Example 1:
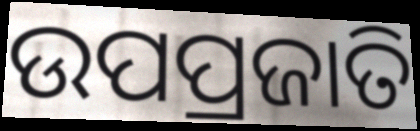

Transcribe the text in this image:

ଉପପ୍ରଜାତି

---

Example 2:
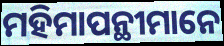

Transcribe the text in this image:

ମହିମାପନ୍ଥୀମାନେ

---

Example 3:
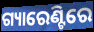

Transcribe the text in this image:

ଗ୍ୟାରେଣ୍ଟିରେ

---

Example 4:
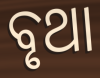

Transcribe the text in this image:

ବୃଥା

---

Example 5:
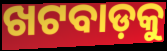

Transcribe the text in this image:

ଖଟବାଡ଼କୁ